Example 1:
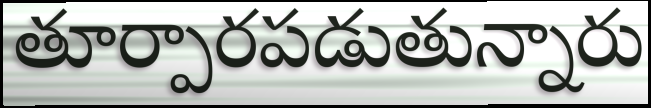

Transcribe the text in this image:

తూర్పారపడుతున్నారు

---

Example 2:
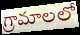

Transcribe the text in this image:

గ్రామాలలో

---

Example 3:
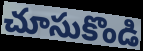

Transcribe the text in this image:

చూసుకొండి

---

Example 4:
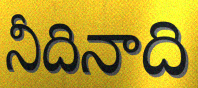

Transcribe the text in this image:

నీదినాది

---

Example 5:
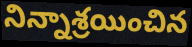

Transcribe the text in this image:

నిన్నాశ్రయించిన